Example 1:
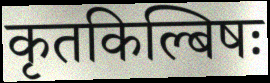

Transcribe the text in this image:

कृतकिल्बिषः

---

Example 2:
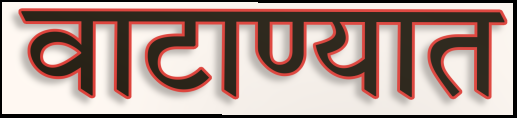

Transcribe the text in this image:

वाटाण्यात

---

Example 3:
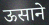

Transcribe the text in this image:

ऊसाने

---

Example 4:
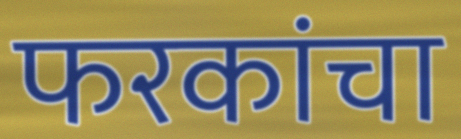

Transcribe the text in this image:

फरकांचा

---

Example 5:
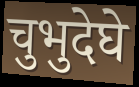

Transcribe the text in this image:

चुभुदेघे